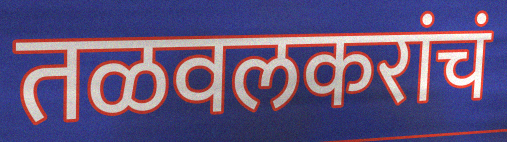
तळवलकरांचं